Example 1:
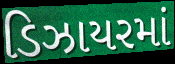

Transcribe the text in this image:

ડિઝાયરમાં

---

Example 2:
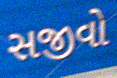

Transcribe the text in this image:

સજીવો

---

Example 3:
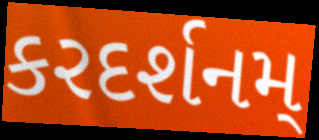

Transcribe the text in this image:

કરદર્શનમ્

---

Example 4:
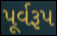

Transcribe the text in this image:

પૂર્વરૂપ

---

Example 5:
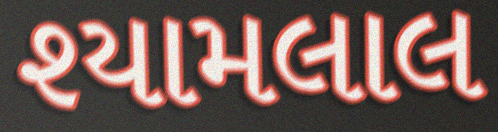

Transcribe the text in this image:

શ્યામલાલ